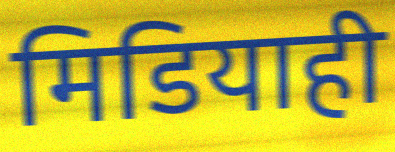
मिडियाही